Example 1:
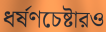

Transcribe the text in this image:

ধর্ষণচেষ্টারও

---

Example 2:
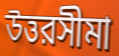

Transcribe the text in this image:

উত্তরসীমা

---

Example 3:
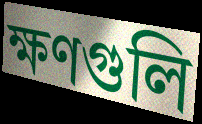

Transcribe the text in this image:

ক্ষণগুলি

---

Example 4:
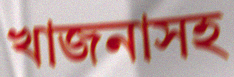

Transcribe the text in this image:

খাজনাসহ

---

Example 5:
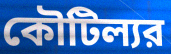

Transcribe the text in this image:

কৌটিল্যর